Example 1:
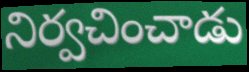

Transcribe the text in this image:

నిర్వచించాడు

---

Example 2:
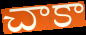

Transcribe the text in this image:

చాకా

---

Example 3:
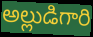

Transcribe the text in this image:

అల్లుడిగారి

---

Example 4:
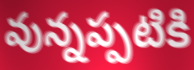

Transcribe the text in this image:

వున్నప్పటికి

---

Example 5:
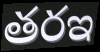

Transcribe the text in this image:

తరఇ